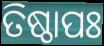
ତିଷ୍ଠାପଃ